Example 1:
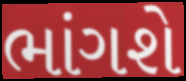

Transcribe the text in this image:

ભાંગશે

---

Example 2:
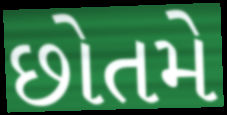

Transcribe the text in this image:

છોતમે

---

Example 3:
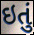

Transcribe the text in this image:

ઇતું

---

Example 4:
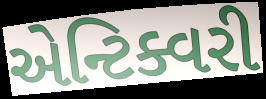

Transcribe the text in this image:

એન્ટિક્વરી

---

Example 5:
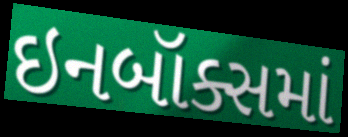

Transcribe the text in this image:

ઇનબૉક્સમાં